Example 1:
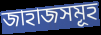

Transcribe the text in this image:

জাহাজসমূহ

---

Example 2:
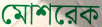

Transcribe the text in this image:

মোশরেক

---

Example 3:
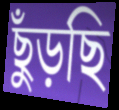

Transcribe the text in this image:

ছুঁড়ছি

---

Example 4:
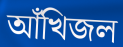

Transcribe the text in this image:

আঁখিজল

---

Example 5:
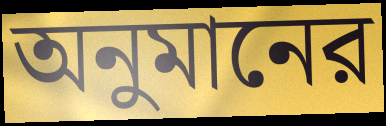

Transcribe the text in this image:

অনুমানের